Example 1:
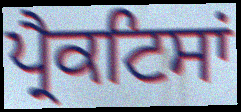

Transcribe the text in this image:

ਪ੍ਰੈਕਟਿਸਾਂ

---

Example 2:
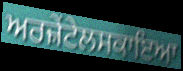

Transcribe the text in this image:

ਅਰਜ਼ੇਂਟੇਲਸਕਾਇਆ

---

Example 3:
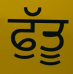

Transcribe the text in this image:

ਫੁੱਤੂ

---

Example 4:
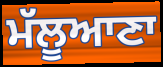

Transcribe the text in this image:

ਮੱਲੂਆਣਾ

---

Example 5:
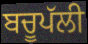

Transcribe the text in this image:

ਬਚੂਪੱਲੀ